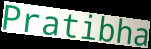
Pratibha